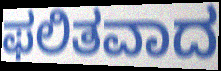
ಫಲಿತವಾದ